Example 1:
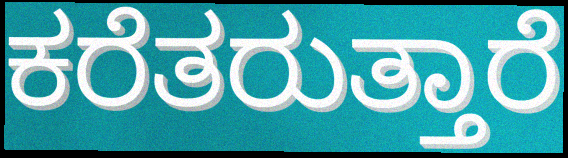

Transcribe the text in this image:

ಕರೆತರುತ್ತಾರೆ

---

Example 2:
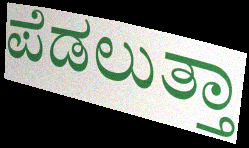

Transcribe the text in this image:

ಪೆಡಲುತ್ತಾ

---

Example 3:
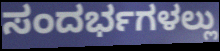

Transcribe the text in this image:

ಸಂದರ್ಭಗಳಲ್ಲು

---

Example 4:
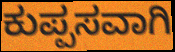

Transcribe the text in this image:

ಕುಪ್ಪಸವಾಗಿ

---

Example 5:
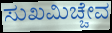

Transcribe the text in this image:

ಸುಖಮಿಚ್ಚೇವ